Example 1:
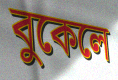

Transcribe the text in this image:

বুকেলে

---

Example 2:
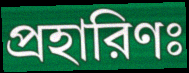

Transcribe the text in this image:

প্রহারিণঃ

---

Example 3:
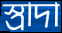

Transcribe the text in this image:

স্ত্রাদা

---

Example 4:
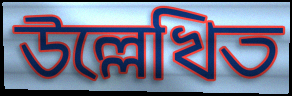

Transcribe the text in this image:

উল্লেখিত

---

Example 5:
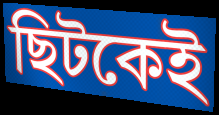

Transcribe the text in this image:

ছিটকেই